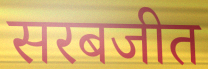
सरबजीत